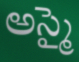
అస్మై